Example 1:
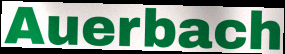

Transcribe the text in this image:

Auerbach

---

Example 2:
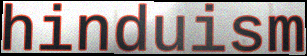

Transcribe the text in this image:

hinduism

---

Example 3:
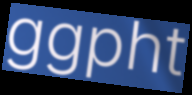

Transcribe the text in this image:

ggpht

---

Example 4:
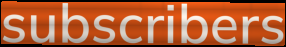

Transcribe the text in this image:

subscribers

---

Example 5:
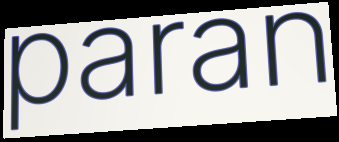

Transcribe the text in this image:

paran